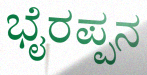
ಭೈರಪ್ಪನ